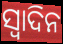
ସ୍ବାଦିନ